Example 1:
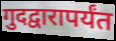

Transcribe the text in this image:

गुदद्वारापर्यंत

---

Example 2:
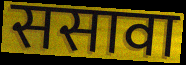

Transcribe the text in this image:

ससावा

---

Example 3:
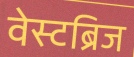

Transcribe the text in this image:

वेस्टब्रिज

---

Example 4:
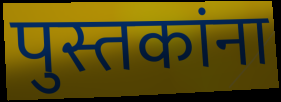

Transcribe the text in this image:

पुस्तकांना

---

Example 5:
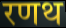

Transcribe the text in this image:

रणथ